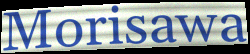
Morisawa